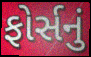
ફોર્સનું